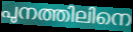
പുനത്തിലിനെ